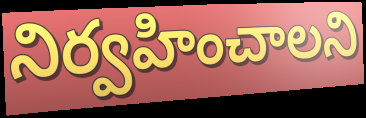
నిర్వహించాలని